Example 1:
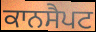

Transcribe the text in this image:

ਕਾਨਸੈਪਟ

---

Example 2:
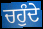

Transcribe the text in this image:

ਚਹੁੰਦੇ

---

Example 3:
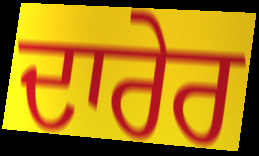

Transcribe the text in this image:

ਦਾਰੇਰ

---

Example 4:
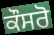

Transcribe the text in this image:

ਕੌਸਰੋ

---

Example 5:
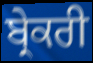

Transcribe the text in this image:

ਬ੍ਰੇਕਰੀ